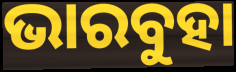
ଭାରବୁହା